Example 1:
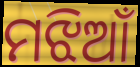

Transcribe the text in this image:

ମଝିଆଁ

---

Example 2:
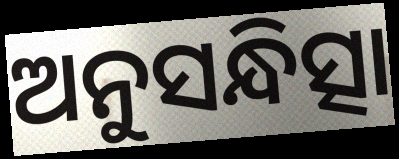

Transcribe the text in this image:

ଅନୁସନ୍ଧିତ୍ସା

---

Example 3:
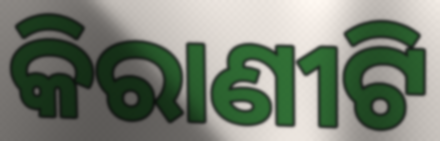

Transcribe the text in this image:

କିରାଣୀଟି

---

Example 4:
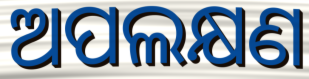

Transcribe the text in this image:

ଅପଲକ୍ଷଣ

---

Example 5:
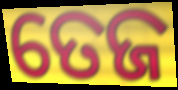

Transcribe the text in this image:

ତେଜ